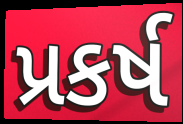
પ્રકર્ષ